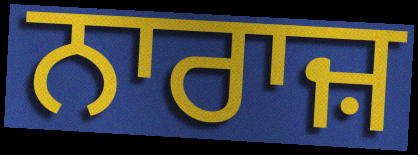
ਨਾਰਾਜ਼